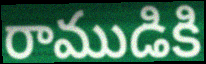
రాముడికి